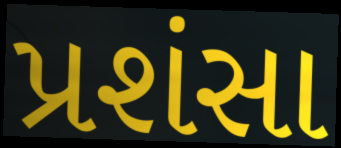
પ્રશંસા